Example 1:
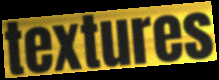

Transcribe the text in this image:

textures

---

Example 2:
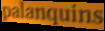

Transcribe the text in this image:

palanquins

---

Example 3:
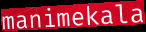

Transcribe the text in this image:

manimekala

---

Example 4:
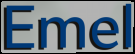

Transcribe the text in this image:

Emel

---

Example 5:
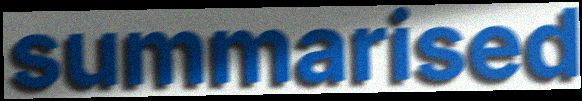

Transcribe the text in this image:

summarised